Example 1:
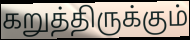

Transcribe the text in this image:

கறுத்திருக்கும்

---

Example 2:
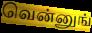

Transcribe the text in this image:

வென்னுங்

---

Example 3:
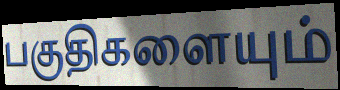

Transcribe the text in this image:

பகுதிகளையும்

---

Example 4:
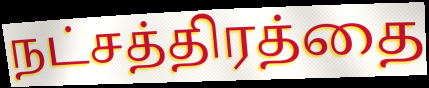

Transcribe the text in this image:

நட்சத்திரத்தை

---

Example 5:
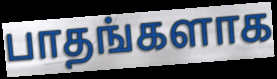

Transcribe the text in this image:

பாதங்களாக